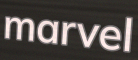
marvel